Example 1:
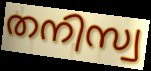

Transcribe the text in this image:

തനിസ്വ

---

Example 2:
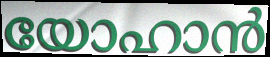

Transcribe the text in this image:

യോഹാൻ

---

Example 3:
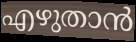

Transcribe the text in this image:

എഴുതാൻ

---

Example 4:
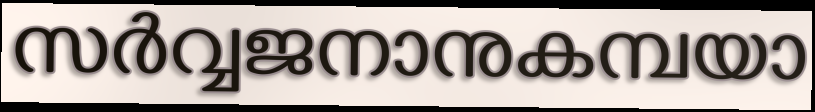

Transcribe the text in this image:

സർവ്വജനാനുകമ്പയാ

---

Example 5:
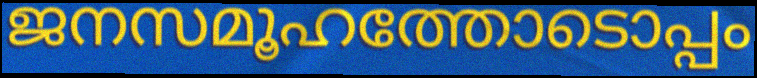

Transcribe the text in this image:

ജനസമൂഹത്തോടൊപ്പം